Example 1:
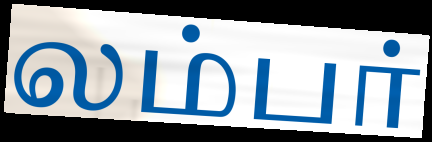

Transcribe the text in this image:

லம்பர்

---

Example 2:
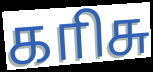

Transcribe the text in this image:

கரிசு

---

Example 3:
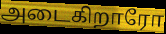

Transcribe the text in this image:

அடைகிறாரோ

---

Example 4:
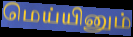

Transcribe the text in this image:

மெய்யினும்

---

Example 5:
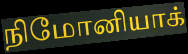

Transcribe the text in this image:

நிமோனியாக்